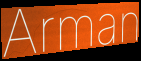
Arman